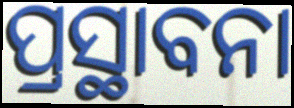
ପ୍ରସ୍ଥାବନା